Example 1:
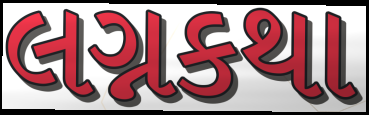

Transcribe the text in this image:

લગ્નકથા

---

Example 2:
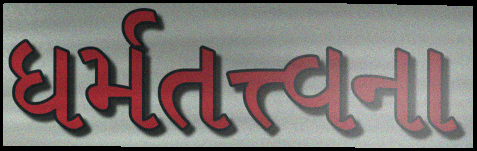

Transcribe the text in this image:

ધર્મતત્ત્વના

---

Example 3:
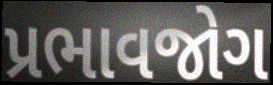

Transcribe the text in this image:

પ્રભાવજોગ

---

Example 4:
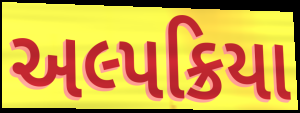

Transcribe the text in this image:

અલ્પક્રિયા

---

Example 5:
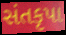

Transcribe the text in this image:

સંતકૃપા